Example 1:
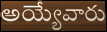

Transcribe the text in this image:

అయ్యేవారు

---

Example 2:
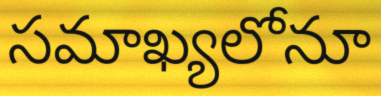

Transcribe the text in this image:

సమాఖ్యలోనూ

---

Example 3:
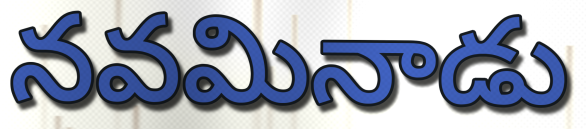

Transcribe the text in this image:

నవమినాడు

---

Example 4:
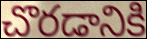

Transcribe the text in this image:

చొరడానికి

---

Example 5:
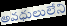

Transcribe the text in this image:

అవధులులేని